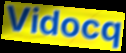
Vidocq